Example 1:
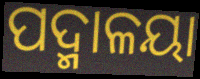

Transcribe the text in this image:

ପଦ୍ମାଳୟା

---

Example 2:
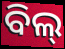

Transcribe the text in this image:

ବିଲ୍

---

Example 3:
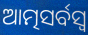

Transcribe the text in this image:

ଆତ୍ମସର୍ବସ୍ଵ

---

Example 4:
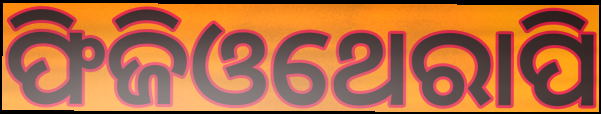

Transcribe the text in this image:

ଫିଜିଓଥେରାପି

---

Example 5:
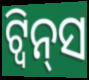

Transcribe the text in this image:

ଟ୍ବିନ୍‌ସ